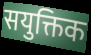
सयुक्तिक